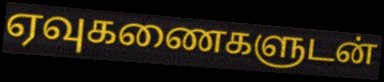
ஏவுகணைகளுடன்